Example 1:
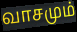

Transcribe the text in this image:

வாசமும்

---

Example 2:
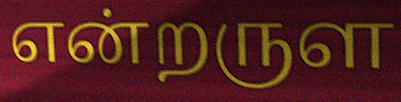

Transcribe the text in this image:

என்றருள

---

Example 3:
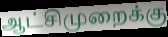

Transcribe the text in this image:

ஆட்சிமுறைக்கு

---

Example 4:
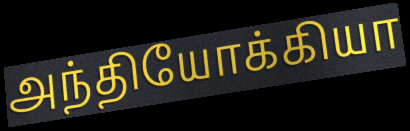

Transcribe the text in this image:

அந்தியோக்கியா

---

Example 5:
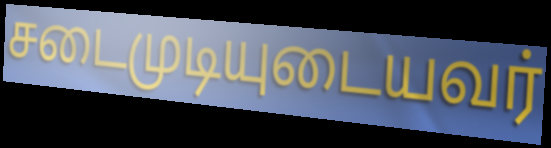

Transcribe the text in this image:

சடைமுடியுடையவர்